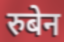
रुबेन